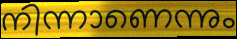
നിന്നാണെന്നും